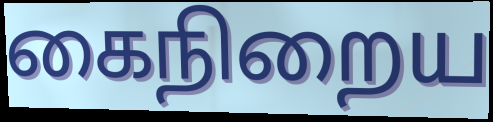
கைநிறைய